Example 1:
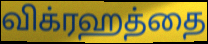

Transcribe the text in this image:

விக்ரஹத்தை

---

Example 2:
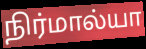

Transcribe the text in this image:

நிர்மால்யா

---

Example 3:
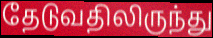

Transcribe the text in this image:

தேடுவதிலிருந்து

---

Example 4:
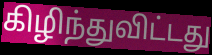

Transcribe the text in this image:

கிழிந்துவிட்டது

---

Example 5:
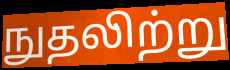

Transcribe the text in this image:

நுதலிற்று